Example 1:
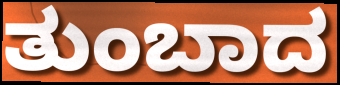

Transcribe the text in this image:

ತುಂಬಾದ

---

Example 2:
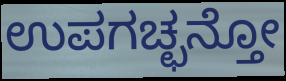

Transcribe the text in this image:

ಉಪಗಚ್ಛನ್ತೋ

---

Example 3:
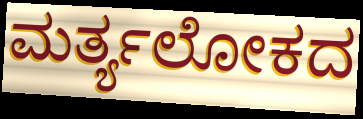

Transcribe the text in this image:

ಮರ್ತ್ಯಲೋಕದ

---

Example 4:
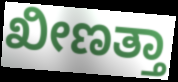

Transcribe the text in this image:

ಖೀಣತ್ತಾ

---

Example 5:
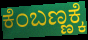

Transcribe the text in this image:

ಕೆಂಬಣ್ಣಕ್ಕೆ